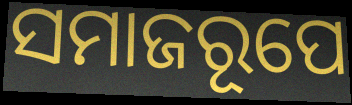
ସମାଜରୂପେ